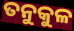
ତନୁକୁଳ